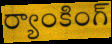
ర్యాంకింగ్